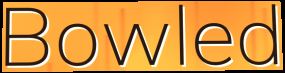
Bowled